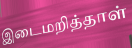
இடைமறித்தாள்